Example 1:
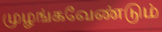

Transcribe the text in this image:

முழங்கவேண்டும்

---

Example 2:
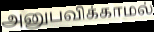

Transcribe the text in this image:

அனுபவிக்காமல்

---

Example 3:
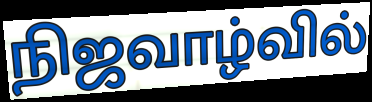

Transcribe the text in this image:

நிஜவாழ்வில்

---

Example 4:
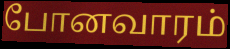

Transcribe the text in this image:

போனவாரம்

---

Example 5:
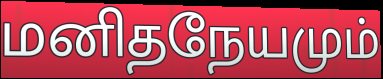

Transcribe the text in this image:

மனிதநேயமும்